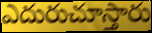
ఎదురుచూస్తారు